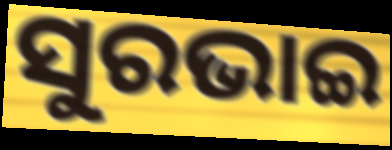
ସୁରଭାଇ